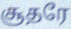
சூதரே